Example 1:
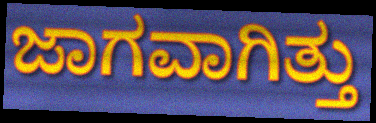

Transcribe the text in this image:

ಜಾಗವಾಗಿತ್ತು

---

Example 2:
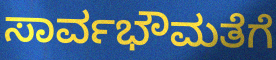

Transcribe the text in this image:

ಸಾರ್ವಭೌಮತೆಗೆ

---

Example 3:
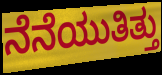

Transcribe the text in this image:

ನೆನೆಯುತಿತ್ತು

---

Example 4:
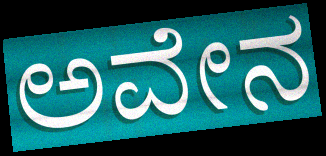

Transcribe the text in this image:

ಅವೇನ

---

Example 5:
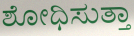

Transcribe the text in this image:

ಶೋಧಿಸುತ್ತಾ